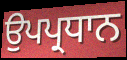
ਉਪਪ੍ਰਧਾਨ